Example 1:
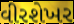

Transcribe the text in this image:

વીરશેખર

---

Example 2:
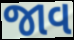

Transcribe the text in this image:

જાવ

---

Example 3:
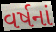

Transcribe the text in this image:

વર્ષનાં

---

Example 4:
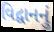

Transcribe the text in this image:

વિદ્વાનનું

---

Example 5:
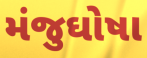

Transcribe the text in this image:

મંજુઘોષા